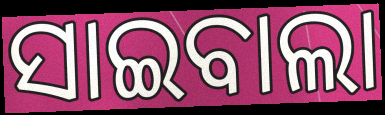
ସାଇବାଲା